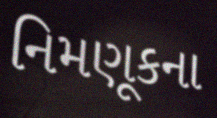
નિમણૂકના